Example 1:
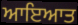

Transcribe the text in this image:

ਆਇਆਤ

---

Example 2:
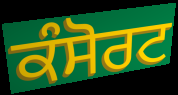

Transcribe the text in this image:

ਕੰਸੋਰਟ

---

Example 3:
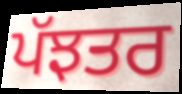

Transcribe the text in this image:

ਪੱਝਤਰ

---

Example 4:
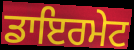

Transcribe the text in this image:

ਡਾਇਰਮੇਟ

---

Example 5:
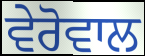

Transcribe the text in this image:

ਵੇਰੋਵਾਲ